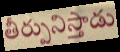
తీర్పునిస్తాడు